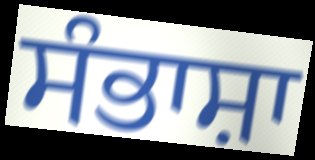
ਸੰਭਾਸ਼ਾ